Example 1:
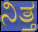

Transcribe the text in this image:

ನಿತ್ತ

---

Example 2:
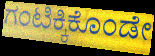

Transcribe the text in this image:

ಗಂಟಿಕ್ಕಿಕೊಂಡೇ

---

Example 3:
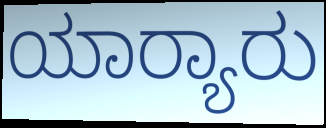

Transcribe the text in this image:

ಯಾರ್‍ಯಾರು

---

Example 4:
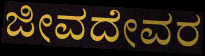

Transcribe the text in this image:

ಜೀವದೇವರ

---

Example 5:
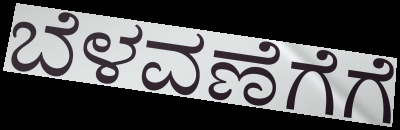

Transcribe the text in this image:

ಬೆಳವಣೆಗೆಗೆ